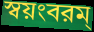
স্বয়ংবরম্